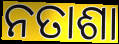
ନତାଶା